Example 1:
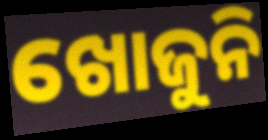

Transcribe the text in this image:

ଖୋଜୁନି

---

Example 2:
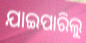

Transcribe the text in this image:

ଯାଇପାରିଲୁ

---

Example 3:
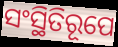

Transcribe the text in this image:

ସଂସ୍ଥିତିରୂପେ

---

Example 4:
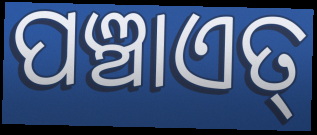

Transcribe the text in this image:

ପଞ୍ଚାଏତ୍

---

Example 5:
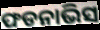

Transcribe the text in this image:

ଫଡନାଭିସ